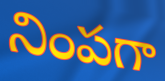
నింపగా